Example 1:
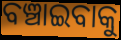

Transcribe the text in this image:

ବଞ୍ଚାଇବାକୁ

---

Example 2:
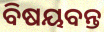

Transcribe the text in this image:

ବିଷୟବନ୍ତ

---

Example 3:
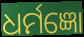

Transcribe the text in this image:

ଧର୍ମଜ୍ଞୋ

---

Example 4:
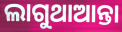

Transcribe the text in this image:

ଲାଗୁଥାଆନ୍ତା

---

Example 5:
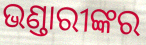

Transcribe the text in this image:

ଭଣ୍ଡାରୀଙ୍କର